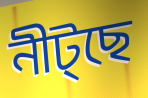
নীট্‌ছে